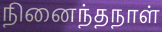
நினைந்தநாள்